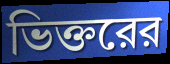
ভিক্তরের